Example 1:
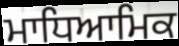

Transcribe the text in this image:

ਮਾਧਿਆਮਿਕ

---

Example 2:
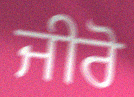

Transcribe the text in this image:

ਜੀਰੋ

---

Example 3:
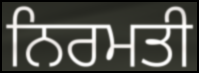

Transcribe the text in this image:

ਨਿਰਮਤੀ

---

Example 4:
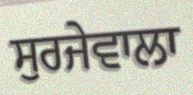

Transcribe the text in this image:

ਸੁਰਜੇਵਾਲਾ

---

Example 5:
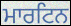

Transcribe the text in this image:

ਮਾਰਟਿਨ